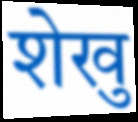
शेखु